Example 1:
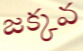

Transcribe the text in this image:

జక్కవ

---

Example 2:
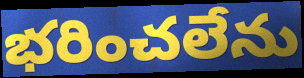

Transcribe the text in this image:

భరించలేను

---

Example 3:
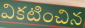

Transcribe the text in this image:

వికటించిన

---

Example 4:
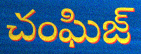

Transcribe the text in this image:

చంఘిజ్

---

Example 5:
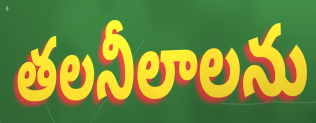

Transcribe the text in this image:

తలనీలాలను